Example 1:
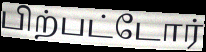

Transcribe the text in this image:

பிற்பட்டோர்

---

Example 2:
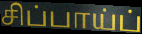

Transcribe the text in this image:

சிப்பாய்ப்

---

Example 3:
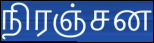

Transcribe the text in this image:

நிரஞ்சன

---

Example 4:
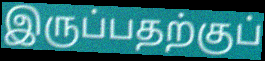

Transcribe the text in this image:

இருப்பதற்குப்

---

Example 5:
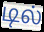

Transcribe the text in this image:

டில்